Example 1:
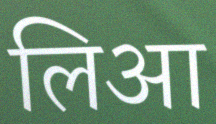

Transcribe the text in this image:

लिआ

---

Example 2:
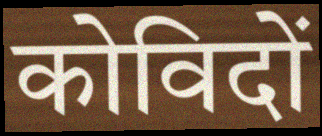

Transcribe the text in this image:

कोविदों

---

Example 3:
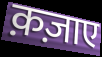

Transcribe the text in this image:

क़ज़ाए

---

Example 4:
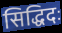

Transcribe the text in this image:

सिद्धिदः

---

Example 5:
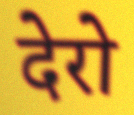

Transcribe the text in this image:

देरो